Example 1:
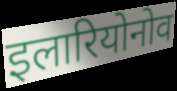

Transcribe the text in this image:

इलारियोनोव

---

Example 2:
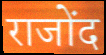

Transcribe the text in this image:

राजोंद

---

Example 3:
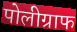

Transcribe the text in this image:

पोलीग्राफ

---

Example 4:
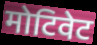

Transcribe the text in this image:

मोटिवेट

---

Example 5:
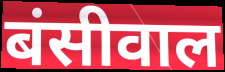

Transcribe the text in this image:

बंसीवाल